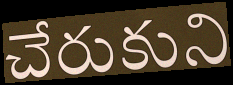
చేరుకుని